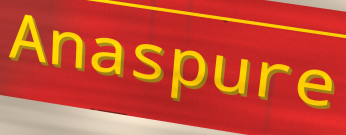
Anaspure